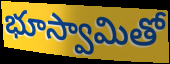
భూస్వామితో